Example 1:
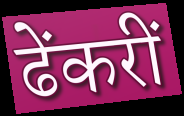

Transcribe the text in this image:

ढेंकरीं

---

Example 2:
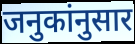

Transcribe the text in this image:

जनुकांनुसार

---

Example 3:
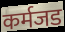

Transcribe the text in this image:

कर्मजड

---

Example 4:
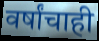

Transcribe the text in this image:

वर्षांचाही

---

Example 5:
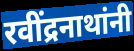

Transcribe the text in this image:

रवींद्रनाथांनी